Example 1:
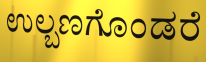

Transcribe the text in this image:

ಉಲ್ಬಣಗೊಂಡರೆ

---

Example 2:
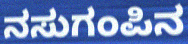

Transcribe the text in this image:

ನಸುಗಂಪಿನ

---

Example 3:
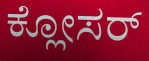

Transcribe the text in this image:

ಕ್ಲೋಸರ್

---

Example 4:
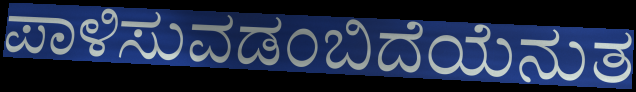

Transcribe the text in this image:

ಪಾಳಿಸುವಡಂಬಿದೆಯೆನುತ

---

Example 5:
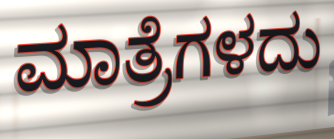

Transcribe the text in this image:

ಮಾತ್ರೆಗಳದು